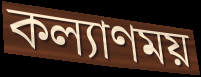
কল্যাণময়